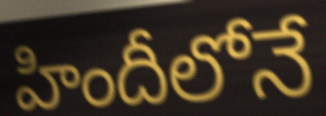
హిందీలోనే